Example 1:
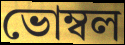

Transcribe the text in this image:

ভোম্বল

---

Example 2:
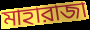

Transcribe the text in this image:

মাহারাজা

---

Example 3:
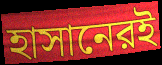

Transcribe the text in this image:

হাসানেরই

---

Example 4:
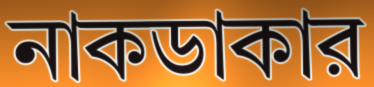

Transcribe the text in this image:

নাকডাকার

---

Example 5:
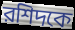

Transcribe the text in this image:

রশিদকে